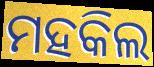
ମହକିଲ